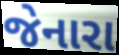
જેનારા